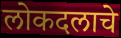
लोकदलाचे